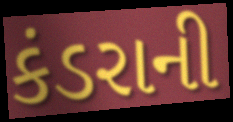
કંડરાની